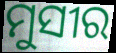
ମୁସୀର